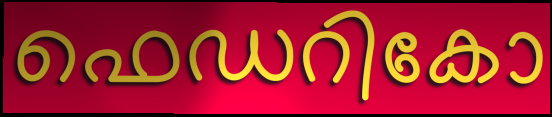
ഫെഡറികോ